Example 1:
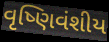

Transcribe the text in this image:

વૃષ્ણિવંશીય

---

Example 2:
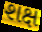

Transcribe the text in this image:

શક્ષ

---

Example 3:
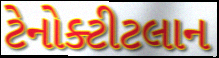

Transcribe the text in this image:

ટેનોક્ટીટલાન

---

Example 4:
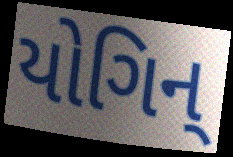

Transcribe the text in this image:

યોગિન્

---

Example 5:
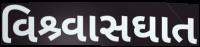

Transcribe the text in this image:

વિશ્ર્વાસઘાત